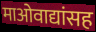
माओवाद्यांसह